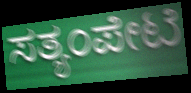
ಸತ್ಯಂಪೇಟೆ